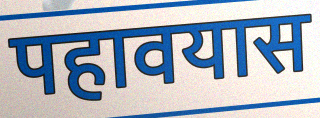
पहावयास